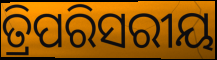
ତ୍ରିପରିସରୀୟ